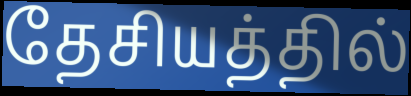
தேசியத்தில்